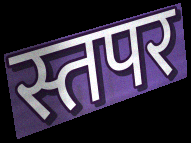
स्तपर